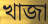
খাজা